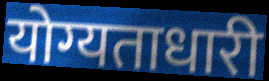
योग्यताधारी